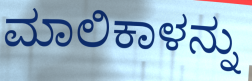
ಮಾಲಿಕಾಳನ್ನು